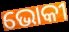
ଭୋକୀ